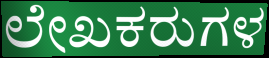
ಲೇಖಕರುಗಳ